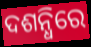
ଦଶନ୍ଧିରେ